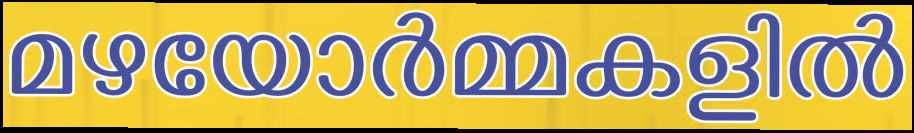
മഴയോർമ്മകളിൽ